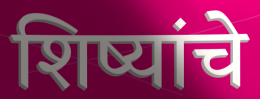
शिष्यांचे